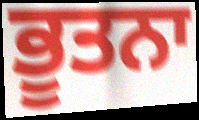
ਭੂਤਨਾ